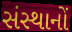
સંસ્થાનોં